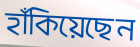
হাঁকিয়েছেন